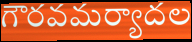
గౌరవమర్యాదల